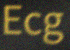
Ecg